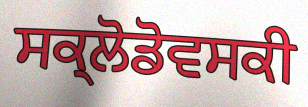
ਸਕ੍ਲੋਡੋਵਸਕੀ